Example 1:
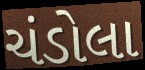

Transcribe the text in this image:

ચંડોલા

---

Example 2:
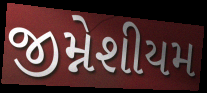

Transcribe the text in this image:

જીમ્નેશીયમ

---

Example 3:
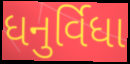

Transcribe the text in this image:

ધનુર્વિધા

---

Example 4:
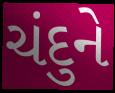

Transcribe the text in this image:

ચંદુને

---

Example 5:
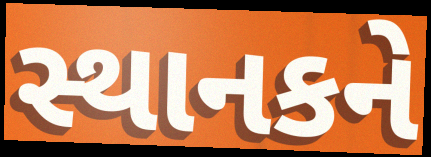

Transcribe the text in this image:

સ્થાનકને